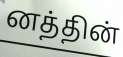
னத்தின்